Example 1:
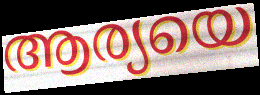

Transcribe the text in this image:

ആര്യയെ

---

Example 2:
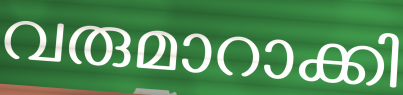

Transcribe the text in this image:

വരുമാറാക്കി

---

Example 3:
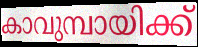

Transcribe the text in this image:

കാവുമ്പായിക്ക്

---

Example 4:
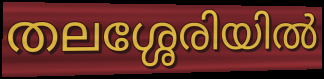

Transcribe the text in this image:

തലശ്ശേരിയിൽ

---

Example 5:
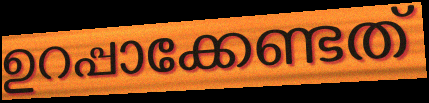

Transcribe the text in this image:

ഉറപ്പാക്കേണ്ടത്